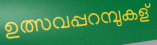
ഉത്സവപ്പറമ്പുകള്